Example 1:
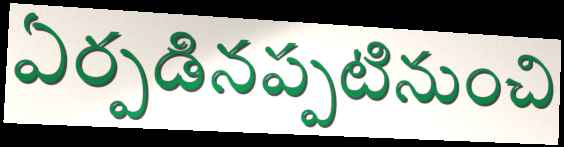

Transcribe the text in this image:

ఏర్పడినప్పటినుంచి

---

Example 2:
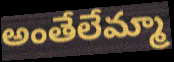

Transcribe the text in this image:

అంతేలేమ్మా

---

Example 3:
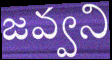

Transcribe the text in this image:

జవ్వని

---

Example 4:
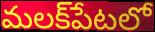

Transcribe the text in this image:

మలక్‌పేటలో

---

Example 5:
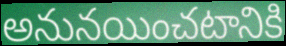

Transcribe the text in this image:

అనునయించటానికి